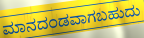
ಮಾನದಂಡವಾಗಬಹುದು